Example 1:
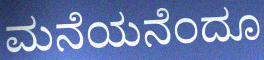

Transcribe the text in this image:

ಮನೆಯನೆಂದೂ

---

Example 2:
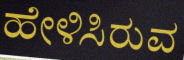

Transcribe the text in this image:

ಹೇಳಿಸಿರುವ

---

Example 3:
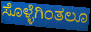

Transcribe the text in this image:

ಸೊಳ್ಳೆಗಿಂತಲೂ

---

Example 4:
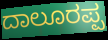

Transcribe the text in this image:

ದಾಲೂರಪ್ಪ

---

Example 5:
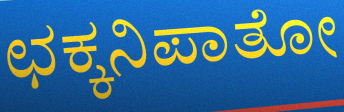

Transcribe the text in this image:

ಛಕ್ಕನಿಪಾತೋ